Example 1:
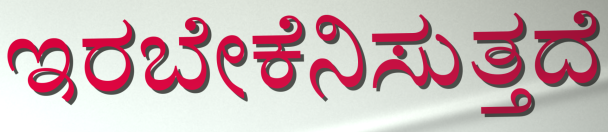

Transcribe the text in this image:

ಇರಬೇಕೆನಿಸುತ್ತದೆ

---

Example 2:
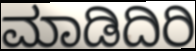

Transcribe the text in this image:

ಮಾಡಿದಿರಿ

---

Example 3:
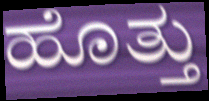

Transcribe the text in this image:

ಹೊತ್ತು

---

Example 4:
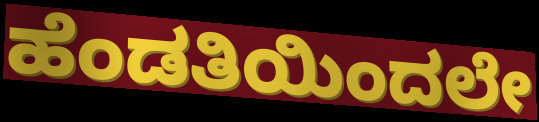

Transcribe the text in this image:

ಹೆಂಡತಿಯಿಂದಲೇ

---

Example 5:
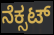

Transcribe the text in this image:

ನೆಕ್ಸಟ್